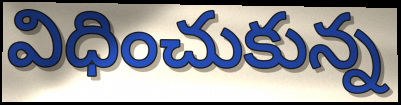
విధించుకున్న